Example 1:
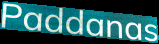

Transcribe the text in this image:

Paddanas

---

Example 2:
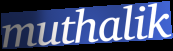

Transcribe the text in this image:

muthalik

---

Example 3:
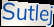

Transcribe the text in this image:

Sutlej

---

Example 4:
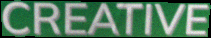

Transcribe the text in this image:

CREATIVE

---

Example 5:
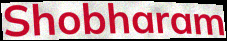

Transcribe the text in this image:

Shobharam